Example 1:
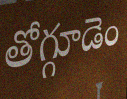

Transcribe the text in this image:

తోగ్గూడెం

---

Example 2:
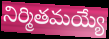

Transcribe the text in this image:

నిర్మితమయ్యే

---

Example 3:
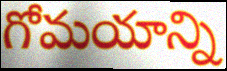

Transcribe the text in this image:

గోమయాన్ని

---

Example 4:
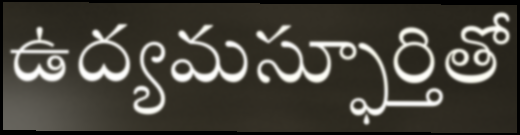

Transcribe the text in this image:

ఉద్యమస్ఫూర్తితో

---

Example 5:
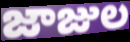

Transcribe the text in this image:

జాజుల